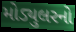
મોડ્યુલરનો